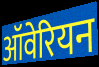
ऑवेरियन